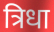
त्रिधा